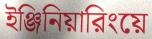
ইঞ্জিনিয়ারিংয়ে